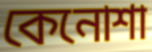
কেনোশা